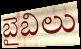
బైబిలు